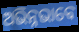
ଅଭିନ୍ନଭାବେ